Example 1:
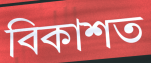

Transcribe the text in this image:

বিকাশত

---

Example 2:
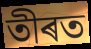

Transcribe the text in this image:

তীৰত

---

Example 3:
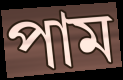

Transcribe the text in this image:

পাম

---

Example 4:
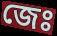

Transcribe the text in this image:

জেঃ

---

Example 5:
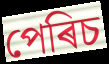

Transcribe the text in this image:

পেৰিচ